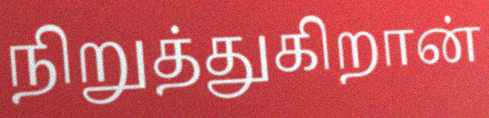
நிறுத்துகிறான்